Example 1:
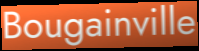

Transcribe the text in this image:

Bougainville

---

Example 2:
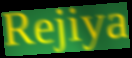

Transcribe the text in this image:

Rejiya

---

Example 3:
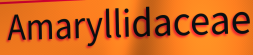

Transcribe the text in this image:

Amaryllidaceae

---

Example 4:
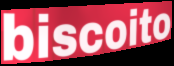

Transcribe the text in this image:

biscoito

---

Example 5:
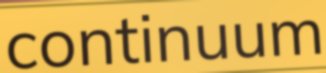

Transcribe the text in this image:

continuum